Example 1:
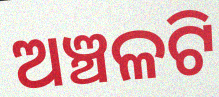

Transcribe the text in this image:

ଅଞ୍ଚଳଟି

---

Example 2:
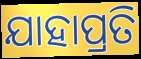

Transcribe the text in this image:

ଯାହାପ୍ରତି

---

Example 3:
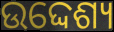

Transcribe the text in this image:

ଉଦ୍ଦେଶ୍ୟ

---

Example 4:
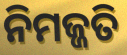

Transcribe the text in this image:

ନିମଜ୍ଜତି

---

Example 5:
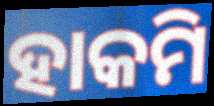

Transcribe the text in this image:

ହାକମି